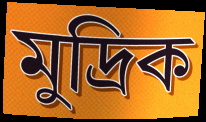
মুদ্রিক